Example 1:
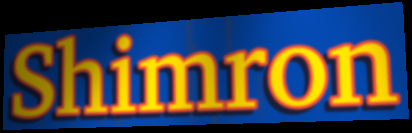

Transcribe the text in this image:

Shimron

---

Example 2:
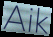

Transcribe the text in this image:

Aik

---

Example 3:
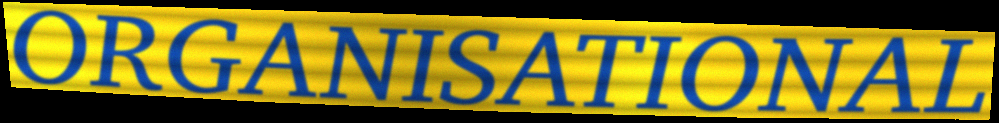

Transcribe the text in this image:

ORGANISATIONAL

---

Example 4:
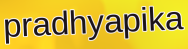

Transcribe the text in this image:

pradhyapika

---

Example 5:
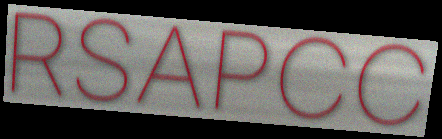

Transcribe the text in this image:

RSAPCC